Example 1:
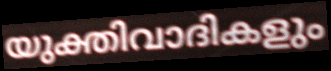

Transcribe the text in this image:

യുക്തിവാദികളും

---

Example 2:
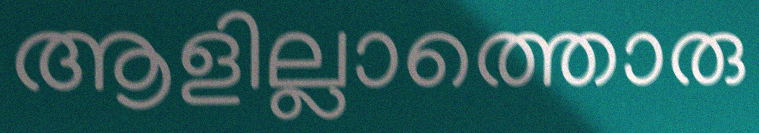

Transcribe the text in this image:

ആളില്ലാത്തൊരു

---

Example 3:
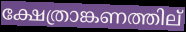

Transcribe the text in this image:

ക്ഷേത്രാങ്കണത്തില്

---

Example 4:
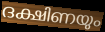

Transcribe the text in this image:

ദക്ഷിണയും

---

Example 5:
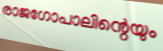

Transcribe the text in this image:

രാജഗോപാലിന്റെയും